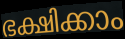
ഭക്ഷിക്കാം